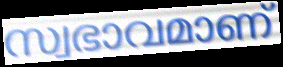
സ്വഭാവമാണ്